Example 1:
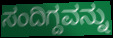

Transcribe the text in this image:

ಸಂದಿಗ್ದವನ್ನು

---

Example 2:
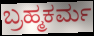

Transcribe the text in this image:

ಬ್ರಹ್ಮಕರ್ಮ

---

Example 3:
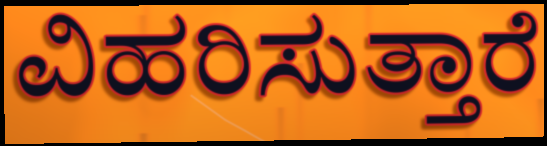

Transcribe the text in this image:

ವಿಹರಿಸುತ್ತಾರೆ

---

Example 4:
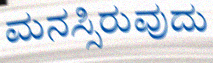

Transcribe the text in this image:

ಮನಸ್ಸಿರುವುದು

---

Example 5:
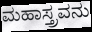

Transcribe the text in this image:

ಮಹಾಸ್ತ್ರವನು